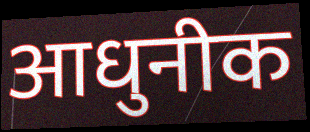
आधुनीक